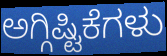
ಅಗ್ಗಿಷ್ಟಿಕೆಗಳು